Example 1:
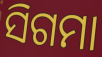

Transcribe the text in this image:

ସିଗମା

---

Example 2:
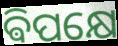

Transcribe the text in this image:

ଵିପକ୍ଷେ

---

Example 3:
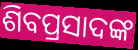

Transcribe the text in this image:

ଶିବପ୍ରସାଦଙ୍କ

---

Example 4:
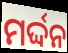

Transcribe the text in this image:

ମର୍ଦ୍ଦନ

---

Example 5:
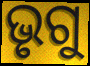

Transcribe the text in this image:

ଭୃଗୁ